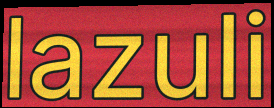
lazuli